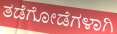
ತಡೆಗೋಡೆಗಳಾಗಿ